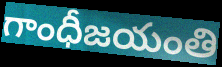
గాంధీజయంతి